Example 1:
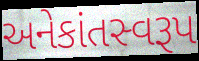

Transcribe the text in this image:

અનેકાંતસ્વરૂપ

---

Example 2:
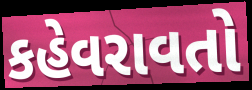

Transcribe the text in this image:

કહેવરાવતો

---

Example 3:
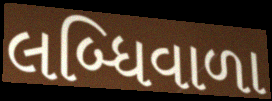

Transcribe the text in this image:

લબ્ધિવાળા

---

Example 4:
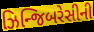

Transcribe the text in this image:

ઝિન્જિબરેસીની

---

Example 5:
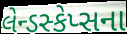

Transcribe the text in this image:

લેન્ડસ્કેપ્સના